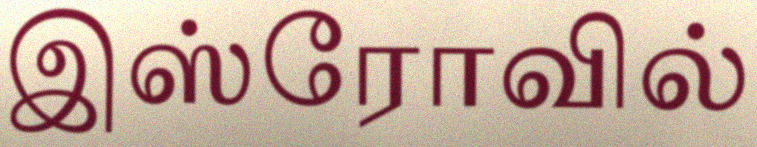
இஸ்ரோவில்